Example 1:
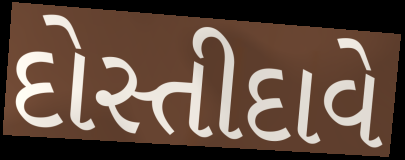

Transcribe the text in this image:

દોસ્તીદાવે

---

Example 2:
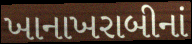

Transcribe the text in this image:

ખાનાખરાબીનાં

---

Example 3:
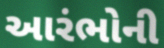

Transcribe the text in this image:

આરંભોની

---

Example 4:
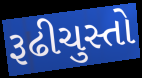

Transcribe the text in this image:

રૂઢીચુસ્તો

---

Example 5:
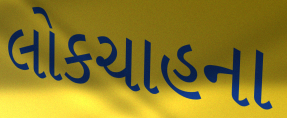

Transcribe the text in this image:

લોકચાહના